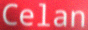
Celan